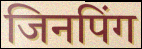
जिनपिंग